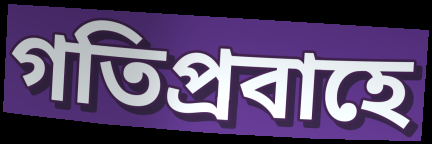
গতিপ্রবাহে